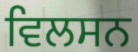
ਵਿਲਸਨ